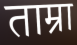
ताम्रा